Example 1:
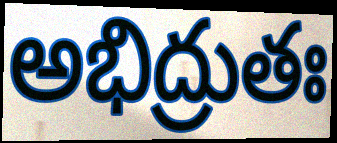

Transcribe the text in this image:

అభిద్రుతః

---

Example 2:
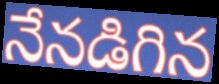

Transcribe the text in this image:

నేనడిగిన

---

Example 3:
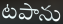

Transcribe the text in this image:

టపాను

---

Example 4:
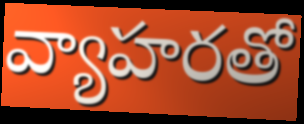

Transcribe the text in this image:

వ్యాహరతో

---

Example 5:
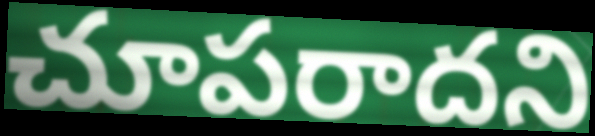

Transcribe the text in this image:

చూపరాదని